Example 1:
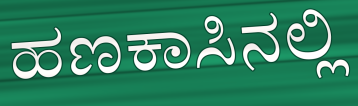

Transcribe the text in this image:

ಹಣಕಾಸಿನಲ್ಲಿ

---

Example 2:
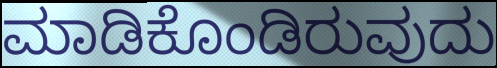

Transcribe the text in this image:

ಮಾಡಿಕೊಂಡಿರುವುದು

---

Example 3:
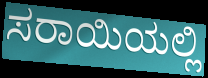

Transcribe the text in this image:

ಸರಾಯಿಯಲ್ಲಿ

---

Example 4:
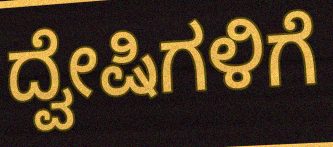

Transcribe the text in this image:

ದ್ವೇಷಿಗಳಿಗೆ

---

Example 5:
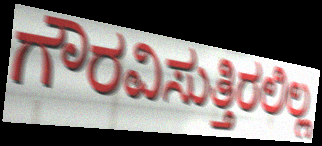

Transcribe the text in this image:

ಗೌರವಿಸುತ್ತಿರಲಿಲ್ಲ